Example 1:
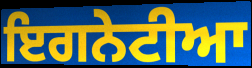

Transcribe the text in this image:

ਇਗਨੇਟੀਆ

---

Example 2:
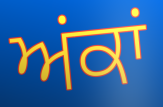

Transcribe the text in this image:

ਅਂਕਾਂ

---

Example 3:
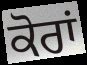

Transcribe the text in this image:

ਕੋਰਾਂ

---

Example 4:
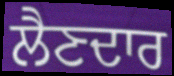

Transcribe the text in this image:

ਲੈਣਦਾਰ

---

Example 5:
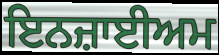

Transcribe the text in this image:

ਇਨਜ਼ਾਈਅਮ